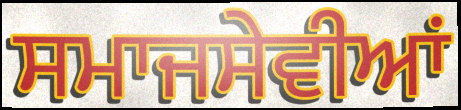
ਸਮਾਜਸੇਵੀਆਂ